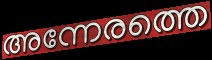
അന്നേരത്തെ